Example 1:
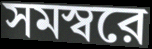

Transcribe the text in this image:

সমস্বরে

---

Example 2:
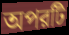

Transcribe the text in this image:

অপরটি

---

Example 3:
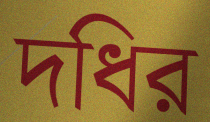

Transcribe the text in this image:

দধির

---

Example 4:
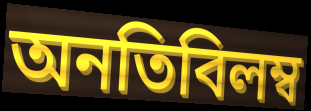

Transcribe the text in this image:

অনতিবিলম্ব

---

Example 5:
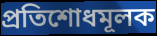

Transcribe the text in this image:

প্রতিশোধমূলক